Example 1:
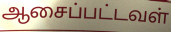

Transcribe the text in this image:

ஆசைப்பட்டவள்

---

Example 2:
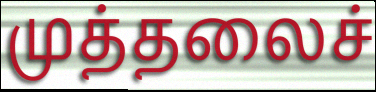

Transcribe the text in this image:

முத்தலைச்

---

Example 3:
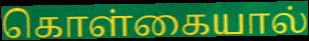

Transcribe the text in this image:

கொள்கையால்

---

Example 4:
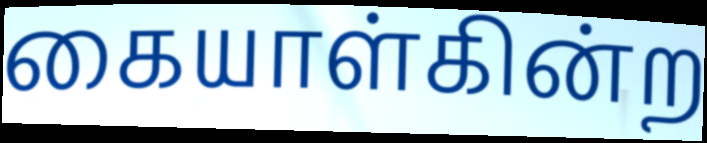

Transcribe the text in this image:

கையாள்கின்ற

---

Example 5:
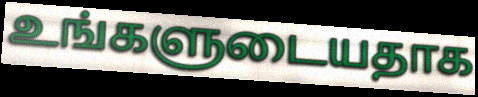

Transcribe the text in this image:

உங்களுடையதாக